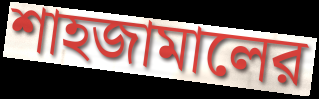
শাহজামালের